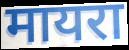
मायरा